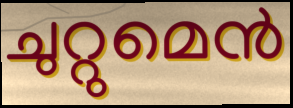
ചുറ്റുമെൻ